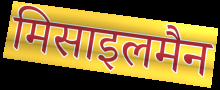
मिसाइलमैन